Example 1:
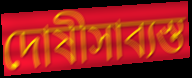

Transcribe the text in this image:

দোষীসাব্যস্ত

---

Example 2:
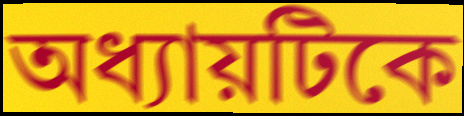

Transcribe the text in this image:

অধ্যায়টিকে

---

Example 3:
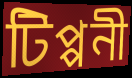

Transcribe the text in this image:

টিপ্পনী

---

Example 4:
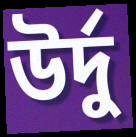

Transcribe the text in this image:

উর্দু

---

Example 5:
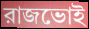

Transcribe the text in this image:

রাজভোই